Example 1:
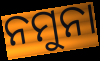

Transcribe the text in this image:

ନମୁନା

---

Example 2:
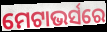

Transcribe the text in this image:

ମେଟାଭର୍ସରେ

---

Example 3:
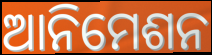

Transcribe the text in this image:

ଆନିମେଶନ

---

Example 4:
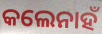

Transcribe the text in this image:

କଲେନାହଁ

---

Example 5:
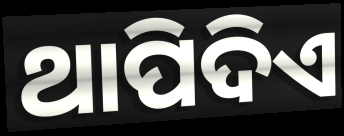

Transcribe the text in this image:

ଥାପିଦିଏ